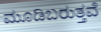
ಮೂಡಿಬರುತ್ತವೆ